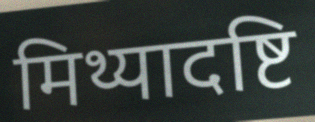
मिथ्यादष्टि